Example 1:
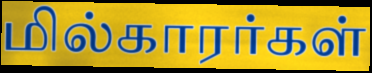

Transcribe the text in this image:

மில்காரர்கள்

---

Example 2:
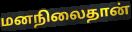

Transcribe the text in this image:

மனநிலைதான்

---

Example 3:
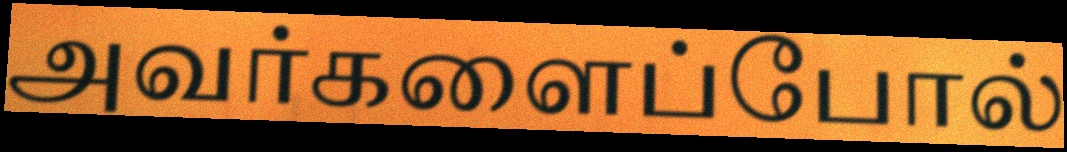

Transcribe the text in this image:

அவர்களைப்போல்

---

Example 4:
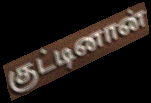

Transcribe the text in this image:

குட்டினான்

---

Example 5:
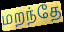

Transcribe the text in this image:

மறந்தே